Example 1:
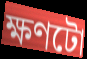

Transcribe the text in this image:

ক্ষণটো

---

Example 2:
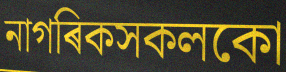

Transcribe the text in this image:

নাগৰিকসকলকো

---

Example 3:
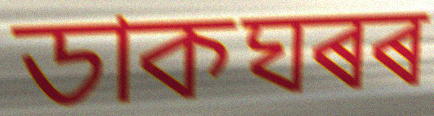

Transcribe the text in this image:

ডাকঘৰৰ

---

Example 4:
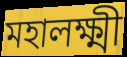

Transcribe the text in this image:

মহালক্ষ্মী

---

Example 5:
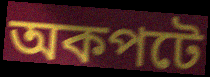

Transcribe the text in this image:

অকপটে